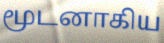
மூடனாகிய